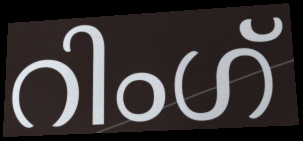
റിംഗ്